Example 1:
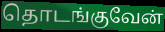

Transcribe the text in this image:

தொடங்குவேன்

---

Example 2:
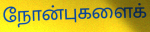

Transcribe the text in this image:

நோன்புகளைக்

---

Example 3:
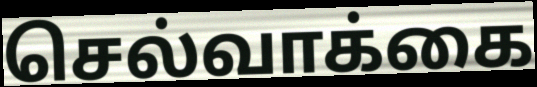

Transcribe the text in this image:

செல்வாக்கை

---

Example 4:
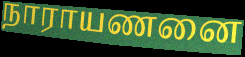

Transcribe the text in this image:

நாராயணனை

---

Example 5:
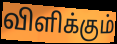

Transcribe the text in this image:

விளிக்கும்